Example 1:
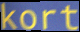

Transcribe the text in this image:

kort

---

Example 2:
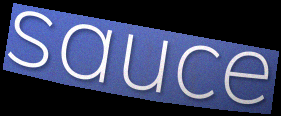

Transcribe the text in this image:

sauce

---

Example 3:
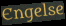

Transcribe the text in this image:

Engelse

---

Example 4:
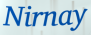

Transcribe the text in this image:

Nirnay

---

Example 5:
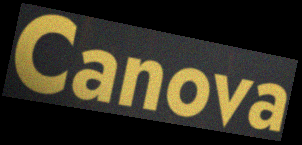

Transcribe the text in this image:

Canova